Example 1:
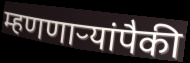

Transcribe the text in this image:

म्हणणाऱ्यांपैकी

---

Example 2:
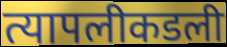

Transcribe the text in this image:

त्यापलीकडली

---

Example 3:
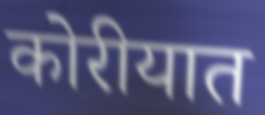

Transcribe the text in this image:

कोरीयात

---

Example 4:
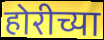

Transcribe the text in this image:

होरीच्या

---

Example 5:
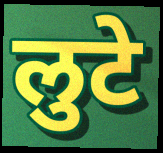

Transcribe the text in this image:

लुटे